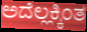
ಅದೆಲ್ಲಕ್ಕಿಂತ